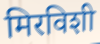
मिरविशी